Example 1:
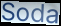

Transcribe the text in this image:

Soda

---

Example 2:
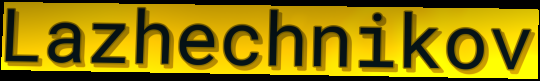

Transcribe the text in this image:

Lazhechnikov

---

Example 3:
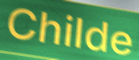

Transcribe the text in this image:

Childe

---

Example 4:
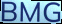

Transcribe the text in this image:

BMG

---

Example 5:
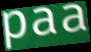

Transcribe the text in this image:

paa